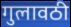
गुलावठी